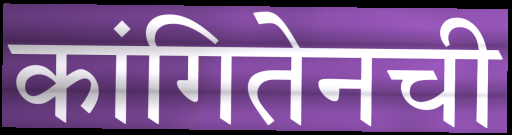
कांगितेनची